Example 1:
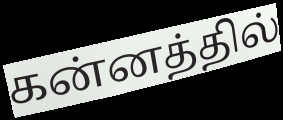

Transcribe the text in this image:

கன்னத்தில்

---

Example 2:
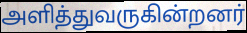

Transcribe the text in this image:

அளித்துவருகின்றனர்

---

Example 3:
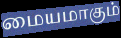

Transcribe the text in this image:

மையமாகும்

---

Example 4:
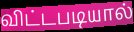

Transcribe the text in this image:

விட்டபடியால்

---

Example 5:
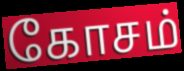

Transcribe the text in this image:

கோசம்